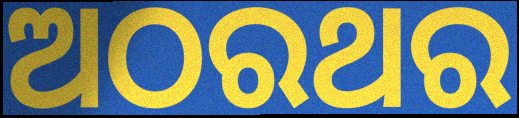
ଅଠରଥର